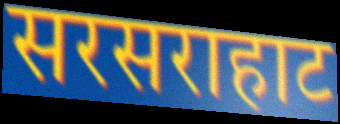
सरसराहाट